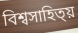
বিশ্বসাহিত্য়